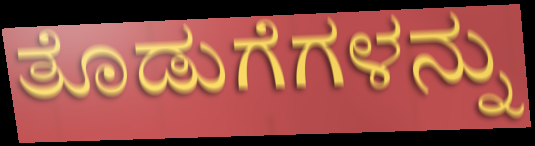
ತೊಡುಗೆಗಳನ್ನು